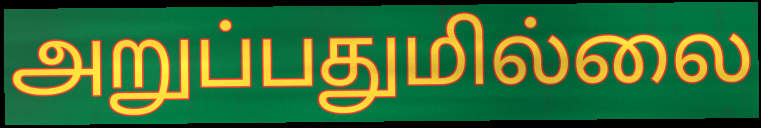
அறுப்பதுமில்லை